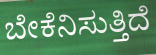
ಬೇಕೆನಿಸುತ್ತಿದೆ